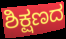
ಶಿಕ್ಷಣದ